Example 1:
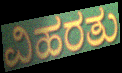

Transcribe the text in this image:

ವಿಹರತು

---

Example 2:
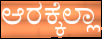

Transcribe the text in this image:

ಆರಕ್ಕೆಲ್ಲಾ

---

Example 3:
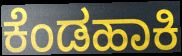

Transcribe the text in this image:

ಕೆಂಡಹಾಕಿ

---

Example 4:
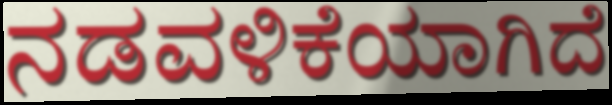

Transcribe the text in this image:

ನಡವಳಿಕೆಯಾಗಿದೆ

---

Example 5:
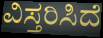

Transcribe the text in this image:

ವಿಸ್ತರಿಸಿದೆ